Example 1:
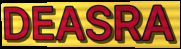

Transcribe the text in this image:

DEASRA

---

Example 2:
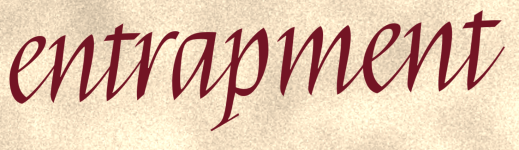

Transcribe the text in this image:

entrapment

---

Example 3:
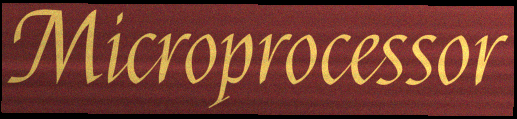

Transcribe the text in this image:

Microprocessor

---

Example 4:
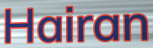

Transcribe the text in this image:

Hairan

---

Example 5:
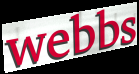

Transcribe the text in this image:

webbs